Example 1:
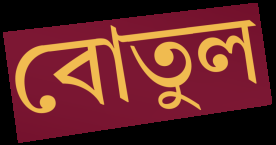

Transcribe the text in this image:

বোতুল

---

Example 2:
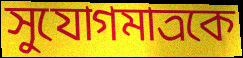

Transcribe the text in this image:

সুযোগমাত্রকে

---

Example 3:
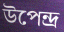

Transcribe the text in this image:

উপেন্দ্র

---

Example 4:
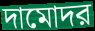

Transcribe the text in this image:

দামোদর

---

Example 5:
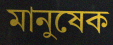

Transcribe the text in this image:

মানুষেক